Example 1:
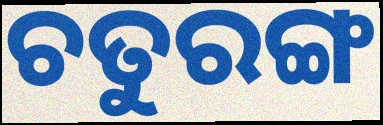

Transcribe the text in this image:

ଚତୁରଙ୍ଗ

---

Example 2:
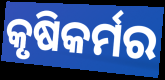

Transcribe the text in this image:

କୃଷିକର୍ମର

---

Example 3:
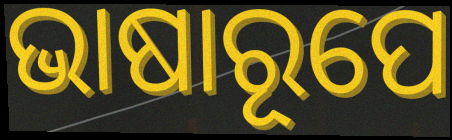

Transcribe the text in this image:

ଭାଷାରୂପେ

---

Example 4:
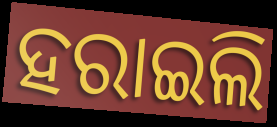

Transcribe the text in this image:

ହରାଇଲି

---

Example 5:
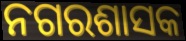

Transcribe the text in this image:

ନଗରଶାସକ